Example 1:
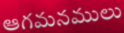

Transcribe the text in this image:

ఆగమనములు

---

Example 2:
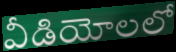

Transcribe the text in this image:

వీడియోలలో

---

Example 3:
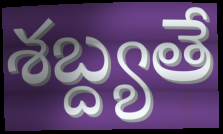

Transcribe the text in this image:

శబ్ద్యతే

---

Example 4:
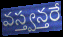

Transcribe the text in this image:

వస్త్వన్తరే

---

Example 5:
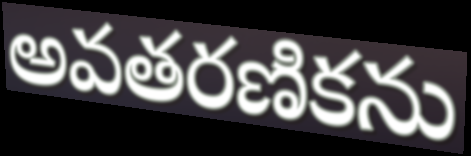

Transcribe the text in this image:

అవతరణికను